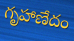
గృహాణేదం